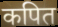
कपित